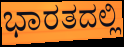
ಭಾರತದಲ್ಲಿ